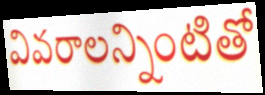
వివరాలన్నింటితో